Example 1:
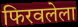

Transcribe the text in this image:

फिरवलेला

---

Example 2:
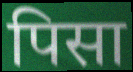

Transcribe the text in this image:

पिसा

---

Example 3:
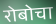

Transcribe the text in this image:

रोबोचा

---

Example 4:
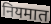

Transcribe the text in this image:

नियमात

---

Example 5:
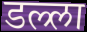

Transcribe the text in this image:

डल्ला